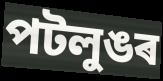
পটলুঙৰ